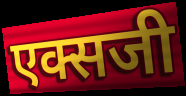
एक्सजी